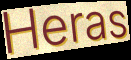
Heras